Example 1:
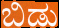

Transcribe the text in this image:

ಬಿಡು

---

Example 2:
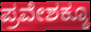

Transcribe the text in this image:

ಪ್ರವೇಶಕ್ಕೂ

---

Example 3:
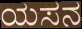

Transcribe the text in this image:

ಯಸನ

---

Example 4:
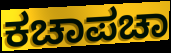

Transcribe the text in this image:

ಕಚಾಪಚಾ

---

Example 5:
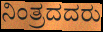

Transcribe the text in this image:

ನಿಂತ್ರದದರು